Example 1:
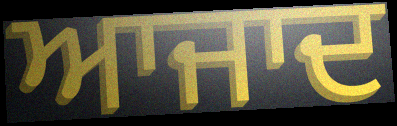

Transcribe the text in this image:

ਆਜਾਦ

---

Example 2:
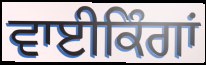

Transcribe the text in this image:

ਵਾਈਕਿੰਗਾਂ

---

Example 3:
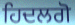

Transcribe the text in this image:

ਹਿਦਲਗੋ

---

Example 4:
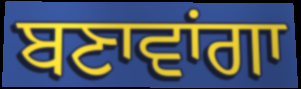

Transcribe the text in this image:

ਬਣਾਵਾਂਗਾ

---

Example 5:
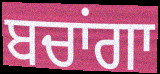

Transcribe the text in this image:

ਬਚਾਂਗਾ